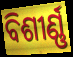
ବିଶୀର୍ଣ୍ଣ